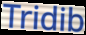
Tridib